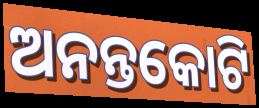
ଅନନ୍ତକୋଟି